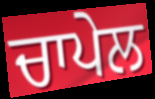
ਚਾਪੇਲ